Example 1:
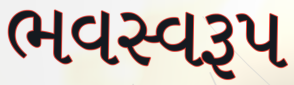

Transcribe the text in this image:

ભવસ્વરૂપ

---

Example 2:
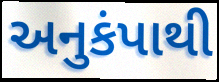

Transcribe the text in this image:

અનુકંપાથી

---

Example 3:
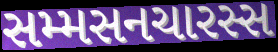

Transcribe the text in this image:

સમ્મસનચારસ્સ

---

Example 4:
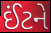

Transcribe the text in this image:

ઈંટને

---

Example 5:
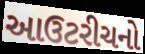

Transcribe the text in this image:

આઉટરીચનો